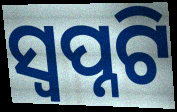
ସ୍ୱପ୍ନଟି